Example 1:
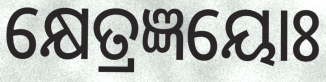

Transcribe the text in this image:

କ୍ଷେତ୍ରଜ୍ଞୟୋଃ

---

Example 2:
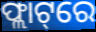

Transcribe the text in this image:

ଫ୍ଲାଟ୍‌ରେ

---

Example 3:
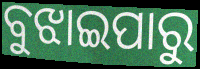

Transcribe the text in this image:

ବୁଝାଇପାରୁ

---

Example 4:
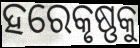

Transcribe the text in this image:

ହରେକୃଷ୍ଣକୁ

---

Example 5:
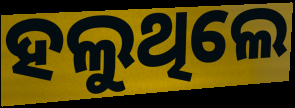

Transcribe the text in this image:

ହଲୁଥିଲେ